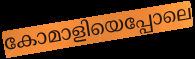
കോമാളിയെപ്പോലെ